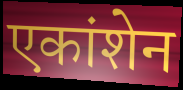
एकांशेन